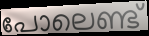
പോലെണ്ട്